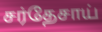
சர்தேசாய்